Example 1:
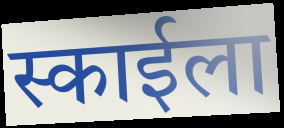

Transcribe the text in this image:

स्काईला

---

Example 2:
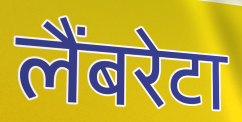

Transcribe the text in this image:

लैंबरेटा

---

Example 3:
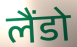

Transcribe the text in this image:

लैंडो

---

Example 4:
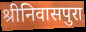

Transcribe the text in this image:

श्रीनिवासपुरा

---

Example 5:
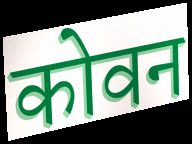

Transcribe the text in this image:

कोवन